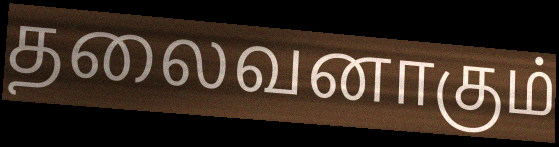
தலைவனாகும்